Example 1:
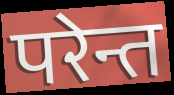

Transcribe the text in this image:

परेन्त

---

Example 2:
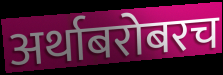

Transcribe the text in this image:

अर्थाबरोबरच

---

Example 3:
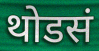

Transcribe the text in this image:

थोडसं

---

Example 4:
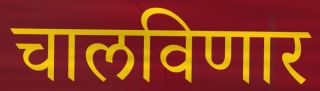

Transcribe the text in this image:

चालविणार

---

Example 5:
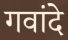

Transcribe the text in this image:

गवांदे